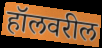
हॉलवरील